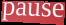
pause